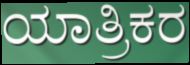
ಯಾತ್ರಿಕರ